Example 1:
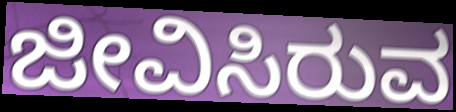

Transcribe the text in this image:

ಜೀವಿಸಿರುವ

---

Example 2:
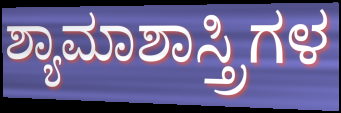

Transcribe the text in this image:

ಶ್ಯಾಮಾಶಾಸ್ತ್ರಿಗಳ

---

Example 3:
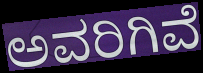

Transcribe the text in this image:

ಅವರಿಗಿವೆ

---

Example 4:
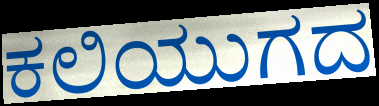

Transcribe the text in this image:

ಕಲಿಯುಗದ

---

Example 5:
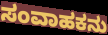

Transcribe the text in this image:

ಸಂವಾಹಕನು